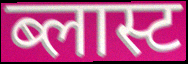
ब्लास्ट